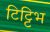
टिट्टिभ